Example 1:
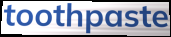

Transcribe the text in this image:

toothpaste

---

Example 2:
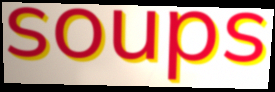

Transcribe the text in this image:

soups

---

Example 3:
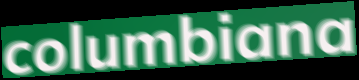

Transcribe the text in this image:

columbiana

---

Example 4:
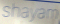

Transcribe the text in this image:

shayam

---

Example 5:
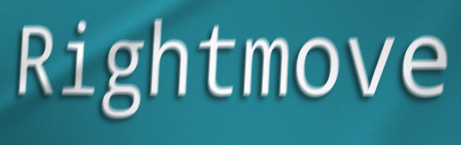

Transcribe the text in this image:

Rightmove